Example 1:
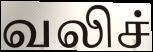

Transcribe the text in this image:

வலிச்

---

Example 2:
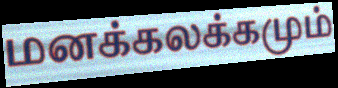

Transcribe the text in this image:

மனக்கலக்கமும்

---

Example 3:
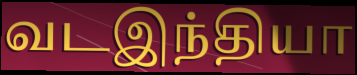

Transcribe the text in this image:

வடஇந்தியா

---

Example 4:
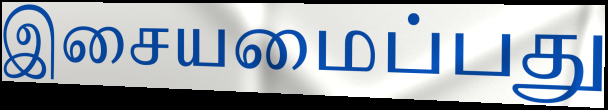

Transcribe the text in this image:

இசையமைப்பது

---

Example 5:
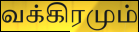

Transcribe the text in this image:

வக்கிரமும்